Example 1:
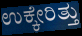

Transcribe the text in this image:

ಉಕ್ಕೇರಿತ್ತು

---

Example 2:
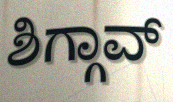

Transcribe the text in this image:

ಶಿಗ್ಗಾವ್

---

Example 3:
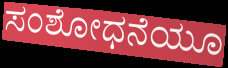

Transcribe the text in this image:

ಸಂಶೋಧನೆಯೂ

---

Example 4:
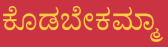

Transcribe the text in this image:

ಕೊಡಬೇಕಮ್ಮಾ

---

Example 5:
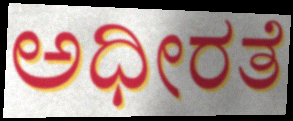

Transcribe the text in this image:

ಅಧೀರತೆ